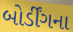
બોર્ડીંગના